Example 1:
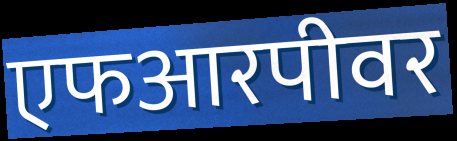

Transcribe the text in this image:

एफआरपीवर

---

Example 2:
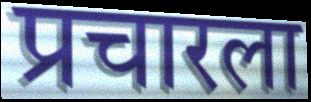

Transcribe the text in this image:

प्रचारला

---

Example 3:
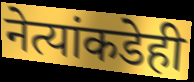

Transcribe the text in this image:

नेत्यांकडेही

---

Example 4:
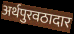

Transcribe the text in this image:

अर्थपुरवठादार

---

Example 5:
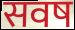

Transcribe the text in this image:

सवष